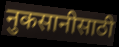
नुकसानीसाठी